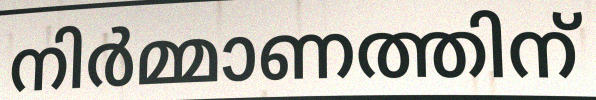
നിർമ്മാണത്തിന്